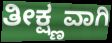
ತೀಕ್ಷ್ಣವಾಗಿ